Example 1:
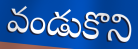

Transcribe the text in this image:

వండుకొని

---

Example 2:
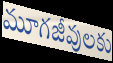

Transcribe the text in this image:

మూగజీవులకు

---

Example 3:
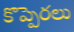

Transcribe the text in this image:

కొప్పెరలు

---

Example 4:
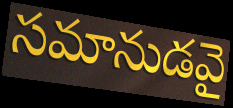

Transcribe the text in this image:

సమానుడవై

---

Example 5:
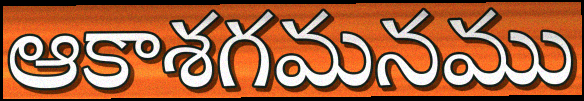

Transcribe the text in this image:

ఆకాశగమనము